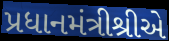
પ્રધાનમંત્રીશ્રીએ